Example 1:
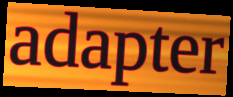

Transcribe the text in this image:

adapter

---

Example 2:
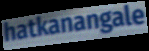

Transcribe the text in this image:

hatkanangale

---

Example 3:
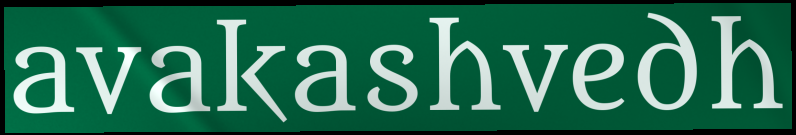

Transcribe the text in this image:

avakashvedh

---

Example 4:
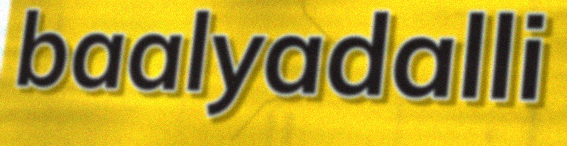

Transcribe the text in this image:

baalyadalli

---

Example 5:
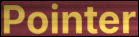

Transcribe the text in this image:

Pointer